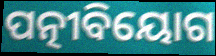
ପତ୍ନୀବିୟୋଗ